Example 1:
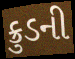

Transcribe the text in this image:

ક્રુડની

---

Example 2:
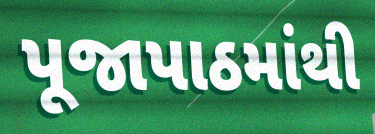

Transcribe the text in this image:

પૂજાપાઠમાંથી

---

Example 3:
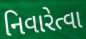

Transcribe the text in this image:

નિવારેત્વા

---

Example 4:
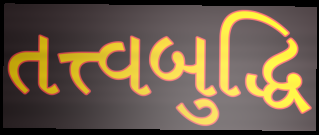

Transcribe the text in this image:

તત્ત્વબુદ્ધિ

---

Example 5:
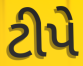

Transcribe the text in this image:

ટીપે